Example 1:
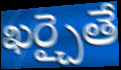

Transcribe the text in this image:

ఖర్చైతే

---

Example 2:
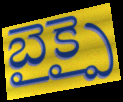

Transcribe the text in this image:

బైక్పై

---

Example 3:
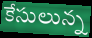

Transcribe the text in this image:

కేసులున్న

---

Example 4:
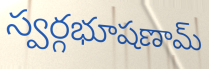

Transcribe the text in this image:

స్వర్గభూషణామ్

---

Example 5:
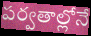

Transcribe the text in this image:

పర్వతాల్లోనే